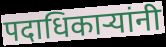
पदाधिकाऱ्यांनी